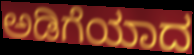
ಅಡಿಗೆಯಾದ